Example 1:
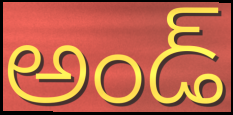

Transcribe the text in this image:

అండ్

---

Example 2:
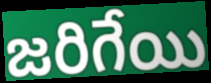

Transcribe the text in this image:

జరిగేయి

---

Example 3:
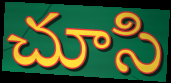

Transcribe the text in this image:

చూసి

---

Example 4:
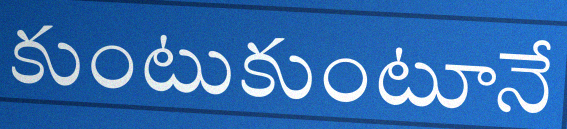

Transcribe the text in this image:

కుంటుకుంటూనే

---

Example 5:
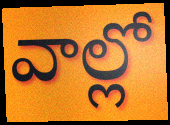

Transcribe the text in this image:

వాల్లో